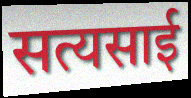
सत्यसाई